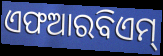
ଏଫଆରବିଏମ୍